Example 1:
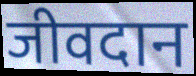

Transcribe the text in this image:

जीवदान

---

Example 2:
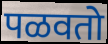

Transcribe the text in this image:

पळवतो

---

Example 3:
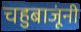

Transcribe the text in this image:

चहुबाजूंनी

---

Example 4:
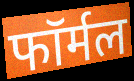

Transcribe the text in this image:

फॉर्मल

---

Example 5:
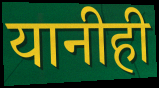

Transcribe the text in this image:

यानीही